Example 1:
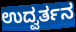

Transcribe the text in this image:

ಉದ್ವರ್ತನ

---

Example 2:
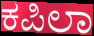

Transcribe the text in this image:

ಕಪಿಲಾ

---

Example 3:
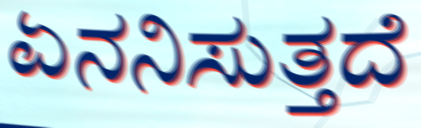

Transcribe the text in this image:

ಏನನಿಸುತ್ತದೆ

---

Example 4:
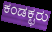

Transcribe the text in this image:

ಕಂಡಕ್ಟರು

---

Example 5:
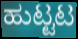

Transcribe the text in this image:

ಹುಟ್ಟಟ